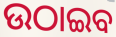
ଉଠାଇବ